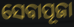
ସେବାପୂଜା